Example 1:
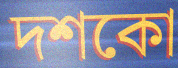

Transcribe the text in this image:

দশকো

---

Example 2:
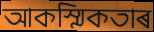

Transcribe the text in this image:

আকস্মিকতাৰ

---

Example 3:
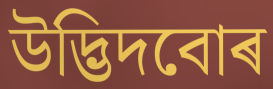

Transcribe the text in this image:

উদ্ভিদবোৰ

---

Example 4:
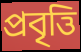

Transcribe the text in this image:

প্ৰবৃত্তি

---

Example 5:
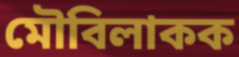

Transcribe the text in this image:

মৌবিলাকক